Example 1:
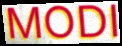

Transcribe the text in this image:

MODI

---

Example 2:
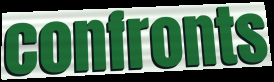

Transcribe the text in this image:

confronts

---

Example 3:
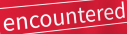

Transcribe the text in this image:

encountered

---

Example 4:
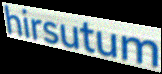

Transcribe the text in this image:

hirsutum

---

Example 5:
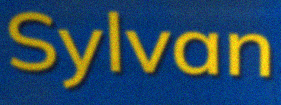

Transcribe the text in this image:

Sylvan